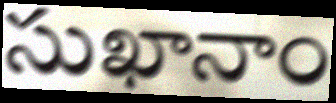
సుఖానాం